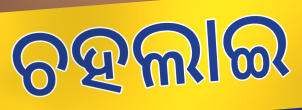
ଚହଲାଇ